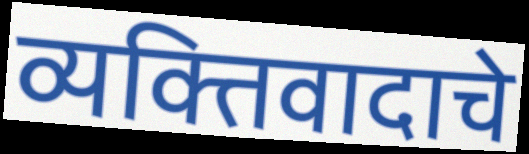
व्यक्तिवादाचे